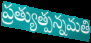
ప్రత్యుత్పన్నమతి